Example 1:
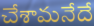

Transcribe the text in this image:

చేశామనేదే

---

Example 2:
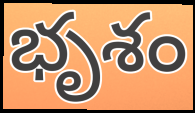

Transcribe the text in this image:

భృశం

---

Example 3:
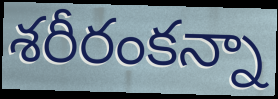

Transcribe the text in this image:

శరీరంకన్నా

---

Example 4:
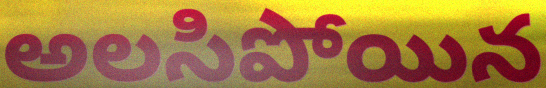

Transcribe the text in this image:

అలసిపోయిన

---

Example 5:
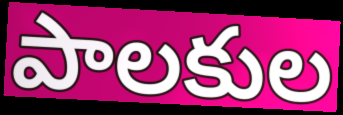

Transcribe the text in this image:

పాలకుల